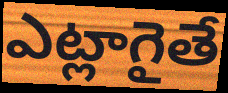
ఎట్లాగైతే